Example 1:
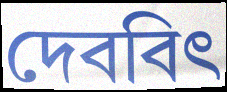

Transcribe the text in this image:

দেববিৎ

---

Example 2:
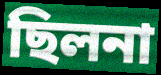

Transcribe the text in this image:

ছিলনা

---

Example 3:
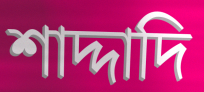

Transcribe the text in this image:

শাদ্দাদি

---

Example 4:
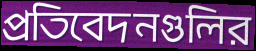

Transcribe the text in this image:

প্রতিবেদনগুলির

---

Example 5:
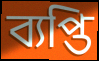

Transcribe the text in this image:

ব্যপ্তি